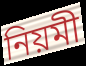
নিয়মী